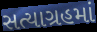
સત્યાગ્રહમાં